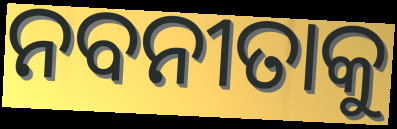
ନବନୀତାକୁ